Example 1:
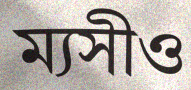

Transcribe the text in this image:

ম্যসীও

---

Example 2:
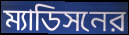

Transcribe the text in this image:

ম্যাডিসনের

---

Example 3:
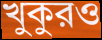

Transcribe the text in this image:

খুকুরও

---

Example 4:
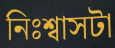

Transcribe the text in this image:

নিঃশ্বাসটা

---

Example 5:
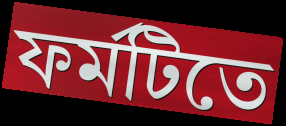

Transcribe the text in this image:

ফর্মটিতে